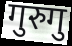
गुरुगु